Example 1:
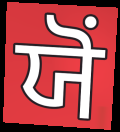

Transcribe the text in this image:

ਯੋਂ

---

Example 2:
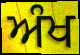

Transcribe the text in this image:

ਅੰਖ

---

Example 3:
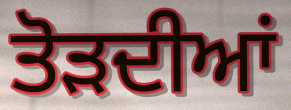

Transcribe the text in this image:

ਤੋੜਦੀਆਂ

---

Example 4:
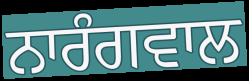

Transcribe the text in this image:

ਨਾਰੰਗਵਾਲ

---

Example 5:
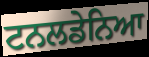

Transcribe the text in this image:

ਟਨਲਡੇਨਿਆ